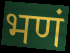
भणं